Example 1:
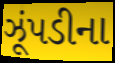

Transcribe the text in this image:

ઝૂંપડીના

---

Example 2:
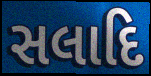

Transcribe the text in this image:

સલાદિ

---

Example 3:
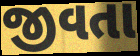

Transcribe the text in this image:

જીવતા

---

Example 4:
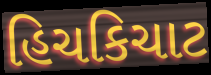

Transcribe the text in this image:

હિચકિચાટ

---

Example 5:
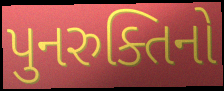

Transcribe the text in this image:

પુનરુક્તિનો